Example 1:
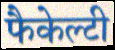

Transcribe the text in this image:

फैकेल्टी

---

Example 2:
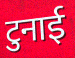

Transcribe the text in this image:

टुनाई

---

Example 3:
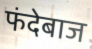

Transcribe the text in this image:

फंदेबाज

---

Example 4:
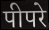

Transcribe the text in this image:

पीपरे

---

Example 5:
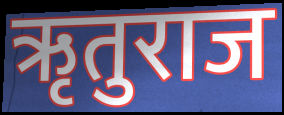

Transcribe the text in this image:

ऋृतुराज